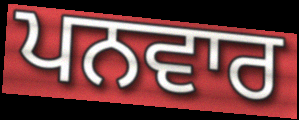
ਪਨਵਾਰ